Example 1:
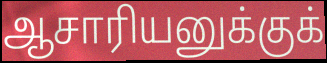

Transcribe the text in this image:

ஆசாரியனுக்குக்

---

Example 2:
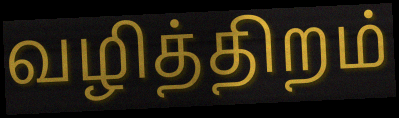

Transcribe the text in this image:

வழித்திறம்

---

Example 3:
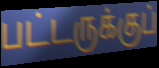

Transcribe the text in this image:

பட்டருக்குப்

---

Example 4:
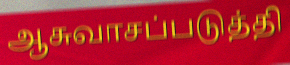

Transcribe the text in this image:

ஆசுவாசப்படுத்தி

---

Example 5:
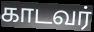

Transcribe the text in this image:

காடவர்